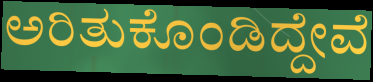
ಅರಿತುಕೊಂಡಿದ್ದೇವೆ